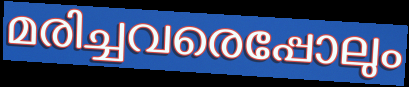
മരിച്ചവരെപ്പോലും